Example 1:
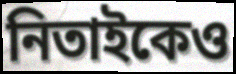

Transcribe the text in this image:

নিতাইকেও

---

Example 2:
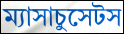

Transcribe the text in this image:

ম্যাসাচুসেটস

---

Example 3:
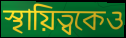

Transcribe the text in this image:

স্থায়িত্বকেও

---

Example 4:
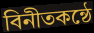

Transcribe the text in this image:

বিনীতকন্ঠে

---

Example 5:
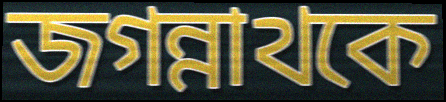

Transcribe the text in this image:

জগন্নাথকে